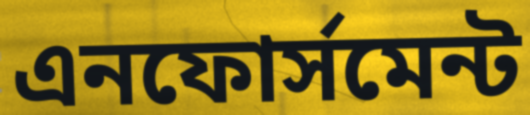
এনফোর্সমেন্ট